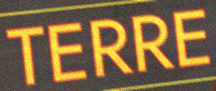
TERRE